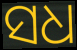
ସଧ